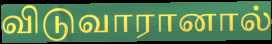
விடுவாரானால்